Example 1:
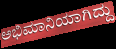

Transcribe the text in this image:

ಅಭಿಮಾನಿಯಾಗಿದ್ದು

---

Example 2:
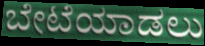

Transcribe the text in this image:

ಬೇಟೆಯಾಡಲು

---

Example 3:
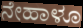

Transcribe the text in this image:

ನೇಹಾಳೂ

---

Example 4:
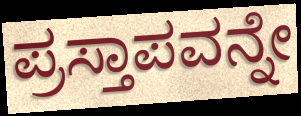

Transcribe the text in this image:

ಪ್ರಸ್ತಾಪವನ್ನೇ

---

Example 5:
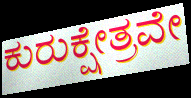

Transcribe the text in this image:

ಕುರುಕ್ಷೇತ್ರವೇ